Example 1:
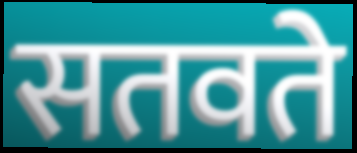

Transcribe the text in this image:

सतवते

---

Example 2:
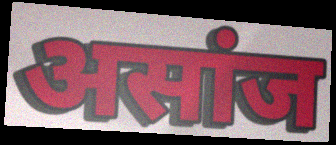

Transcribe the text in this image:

असांज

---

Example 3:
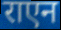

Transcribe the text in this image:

राएन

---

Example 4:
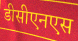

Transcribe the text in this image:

डीसीएनएस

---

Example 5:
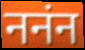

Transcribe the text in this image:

ननंन